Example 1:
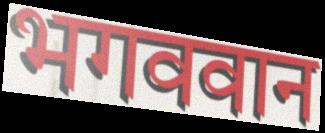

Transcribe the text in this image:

भगववान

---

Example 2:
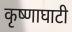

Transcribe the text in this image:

कृष्णाघाटी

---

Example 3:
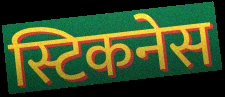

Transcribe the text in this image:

स्टिकनेस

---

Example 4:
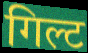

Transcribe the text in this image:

गिल्ट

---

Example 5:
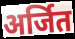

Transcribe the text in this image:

अर्जित